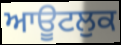
ਆਊਟਲੁਕ